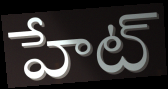
హేట్